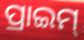
ପ୍ରାଇମ୍